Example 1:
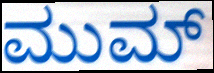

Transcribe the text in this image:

ಮುಮ್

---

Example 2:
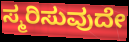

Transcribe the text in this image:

ಸ್ಮರಿಸುವುದೇ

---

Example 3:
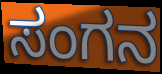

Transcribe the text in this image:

ಸಂಗನ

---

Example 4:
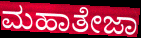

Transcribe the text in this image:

ಮಹಾತೇಜಾ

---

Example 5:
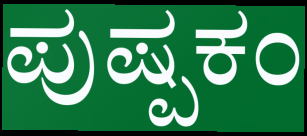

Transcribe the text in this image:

ಪುಷ್ಪಕಂ